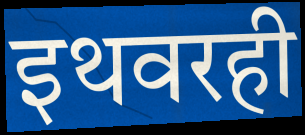
इथवरही